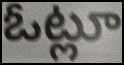
ఓట్లూ